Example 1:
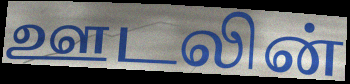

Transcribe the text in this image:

ஊடலின்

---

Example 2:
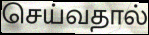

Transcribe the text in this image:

செய்வதால்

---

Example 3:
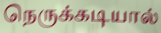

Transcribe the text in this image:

நெருக்கடியால்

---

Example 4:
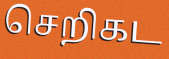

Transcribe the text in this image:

செறிகட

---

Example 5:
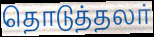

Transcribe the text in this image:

தொடுத்தலர்